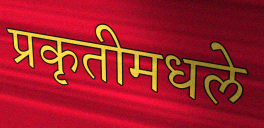
प्रकृतीमधले